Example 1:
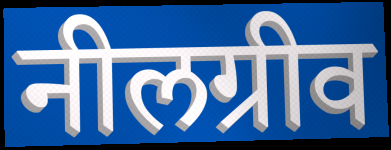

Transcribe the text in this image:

नीलग्रीव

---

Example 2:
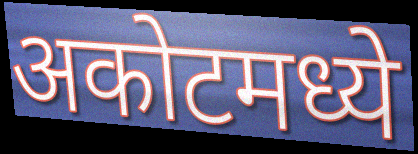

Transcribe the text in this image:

अकोटमध्ये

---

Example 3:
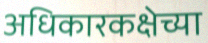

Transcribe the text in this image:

अधिकारकक्षेच्या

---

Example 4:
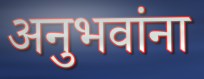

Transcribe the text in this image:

अनुभवांना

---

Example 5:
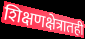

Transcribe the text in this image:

शिक्षणक्षेत्रातही